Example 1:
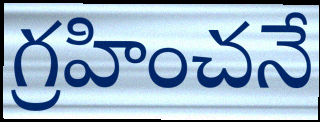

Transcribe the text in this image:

గ్రహించనే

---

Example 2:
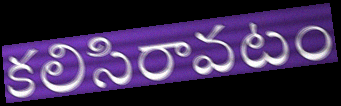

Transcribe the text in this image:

కలిసిరావటం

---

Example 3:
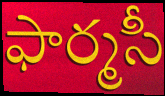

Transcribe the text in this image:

ఫార్మసీ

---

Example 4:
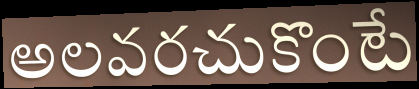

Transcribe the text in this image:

అలవరచుకొంటే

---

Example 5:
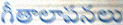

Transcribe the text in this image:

గీతాలాపనలు